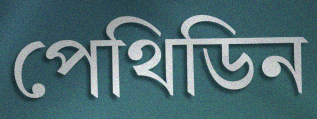
পেথিডিন